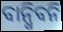
ବାନ୍ଧିବନି